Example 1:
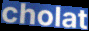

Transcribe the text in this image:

cholat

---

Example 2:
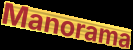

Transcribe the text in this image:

Manorama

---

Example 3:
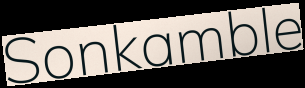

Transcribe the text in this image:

Sonkamble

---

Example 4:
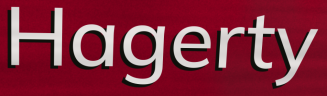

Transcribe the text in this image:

Hagerty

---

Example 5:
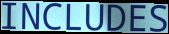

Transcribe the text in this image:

INCLUDES